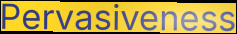
Pervasiveness